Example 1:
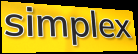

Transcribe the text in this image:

simplex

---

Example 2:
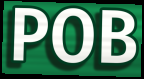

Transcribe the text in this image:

POB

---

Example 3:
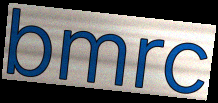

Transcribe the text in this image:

bmrc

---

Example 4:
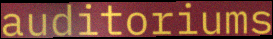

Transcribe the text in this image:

auditoriums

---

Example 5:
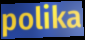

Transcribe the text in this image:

polika